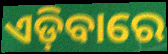
ଏଡ଼ିବାରେ